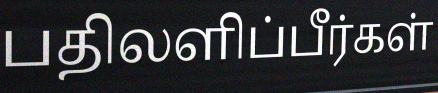
பதிலளிப்பீர்கள்